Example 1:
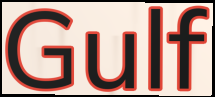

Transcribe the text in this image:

Gulf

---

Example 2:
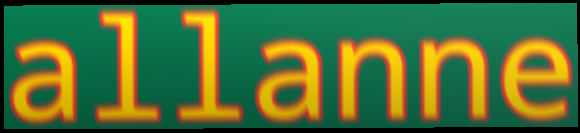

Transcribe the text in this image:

allanne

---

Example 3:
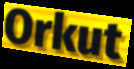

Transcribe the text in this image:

Orkut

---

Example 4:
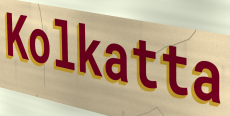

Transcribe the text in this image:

Kolkatta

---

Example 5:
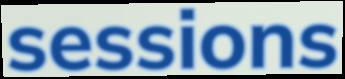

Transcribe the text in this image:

sessions